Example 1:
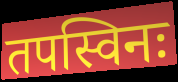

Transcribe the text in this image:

तपस्विनः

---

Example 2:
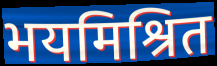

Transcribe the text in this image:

भयमिश्रित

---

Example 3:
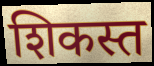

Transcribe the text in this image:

शिकस्त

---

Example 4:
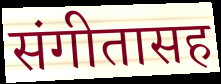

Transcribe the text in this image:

संगीतासह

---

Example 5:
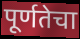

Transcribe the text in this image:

पूर्णतेचा